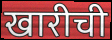
खारीची